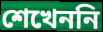
শেখেননি